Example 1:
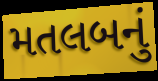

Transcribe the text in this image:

મતલબનું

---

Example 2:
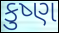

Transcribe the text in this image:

કુષ્ણ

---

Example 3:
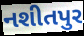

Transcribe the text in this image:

નશીતપુર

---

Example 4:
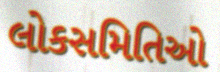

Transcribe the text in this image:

લોકસમિતિઓ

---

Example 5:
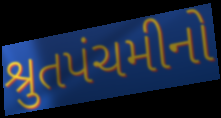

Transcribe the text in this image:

શ્રુતપંચમીનો